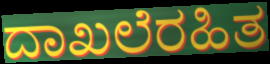
ದಾಖಲೆರಹಿತ